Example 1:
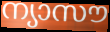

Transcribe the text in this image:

ന്യാസൗ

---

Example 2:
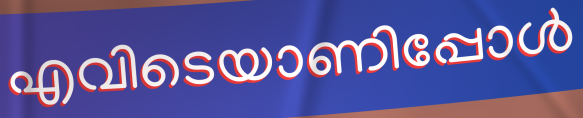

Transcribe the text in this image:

എവിടെയാണിപ്പോൾ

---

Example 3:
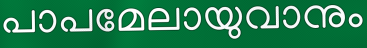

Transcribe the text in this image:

പാപമേലായുവാനും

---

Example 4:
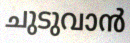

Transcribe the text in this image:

ചുടുവാൻ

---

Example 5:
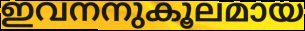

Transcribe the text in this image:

ഇവനനുകൂലമായ